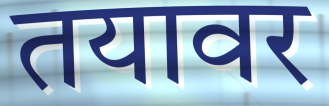
तयावर